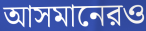
আসমানেরও